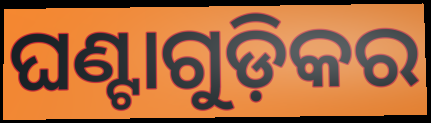
ଘଣ୍ଟାଗୁଡ଼ିକର